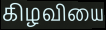
கிழவியை